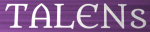
TALENs